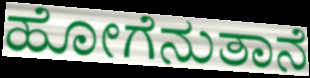
ಹೋಗೆನುತಾನೆ